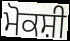
ਮੋਕਸ਼ੀ